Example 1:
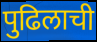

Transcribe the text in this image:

पुढिलाची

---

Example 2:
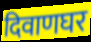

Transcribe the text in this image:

दिवाणघर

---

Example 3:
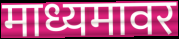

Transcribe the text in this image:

माध्यमावर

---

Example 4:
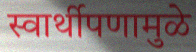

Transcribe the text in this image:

स्वार्थीपणामुळे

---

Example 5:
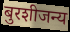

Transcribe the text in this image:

बुरशीजन्य